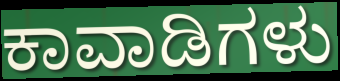
ಕಾವಾಡಿಗಳು